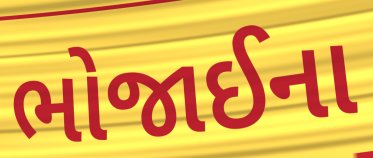
ભોજાઈના